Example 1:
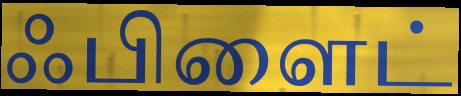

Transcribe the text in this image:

ஃபிளைட்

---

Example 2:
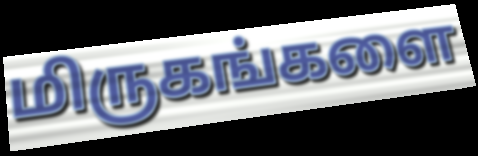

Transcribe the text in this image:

மிருகங்களை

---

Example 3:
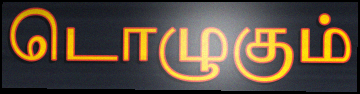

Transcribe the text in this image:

டொழுகும்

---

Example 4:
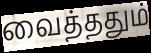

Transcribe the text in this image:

வைத்ததும்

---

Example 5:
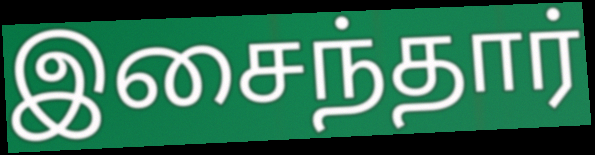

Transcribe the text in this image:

இசைந்தார்